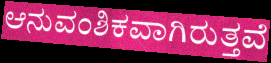
ಆನುವಂಶಿಕವಾಗಿರುತ್ತವೆ